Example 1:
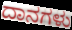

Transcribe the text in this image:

ದಾನಗಳು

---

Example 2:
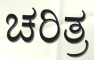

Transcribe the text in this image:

ಚರಿತ್ರ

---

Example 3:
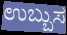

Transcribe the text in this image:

ಉಬ್ಬುಸ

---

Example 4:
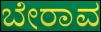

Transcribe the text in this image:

ಬೇರಾವ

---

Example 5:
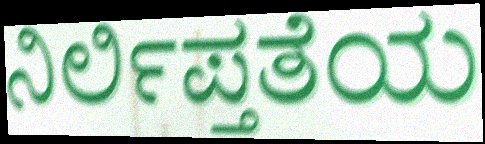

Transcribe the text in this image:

ನಿರ್ಲಿಪ್ತತೆಯ